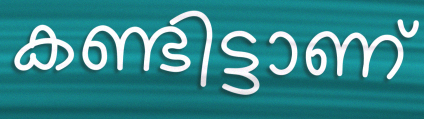
കണ്ടിട്ടാണ്